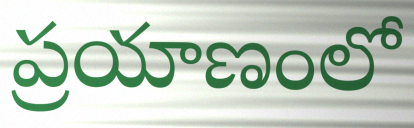
ప్రయాణంలో